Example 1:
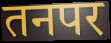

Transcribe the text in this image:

तनपर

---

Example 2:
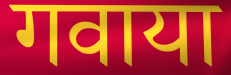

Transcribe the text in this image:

गवाया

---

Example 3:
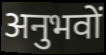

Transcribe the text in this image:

अनुभवों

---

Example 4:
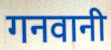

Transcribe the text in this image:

गनवानी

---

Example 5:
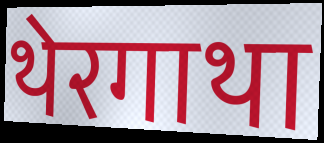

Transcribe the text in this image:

थेरगाथा